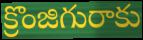
క్రొంజిగురాకు